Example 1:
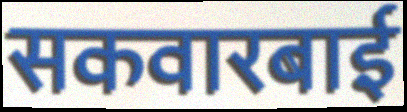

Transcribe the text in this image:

सकवारबाई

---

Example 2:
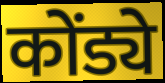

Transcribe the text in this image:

कोंड्ये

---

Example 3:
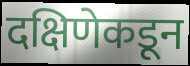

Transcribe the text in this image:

दक्षिणेकडून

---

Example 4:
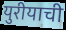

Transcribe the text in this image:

युरीयाची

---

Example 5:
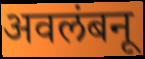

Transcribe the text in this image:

अवलंबनू